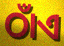
ଠାଁଏ